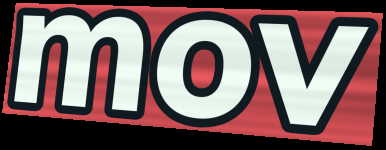
mov